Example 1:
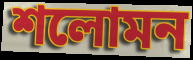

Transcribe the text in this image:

শলোমন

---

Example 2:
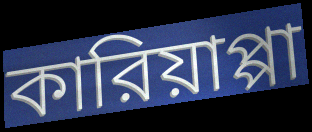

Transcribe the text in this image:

কারিয়াপ্পা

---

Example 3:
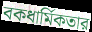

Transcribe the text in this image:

বকধার্মিকতার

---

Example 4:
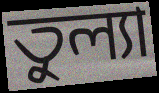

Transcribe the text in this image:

তুল্যা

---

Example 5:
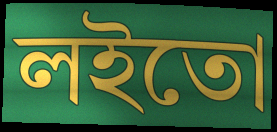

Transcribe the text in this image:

লইতো